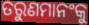
ତରୁଣମାନଂକୁ